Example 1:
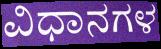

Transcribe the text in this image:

ವಿಧಾನಗಳ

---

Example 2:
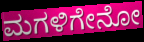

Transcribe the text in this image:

ಮಗಳಿಗೇನೋ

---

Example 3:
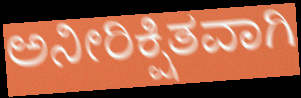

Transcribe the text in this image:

ಅನೀರಿಕ್ಷಿತವಾಗಿ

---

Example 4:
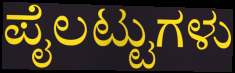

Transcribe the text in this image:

ಪೈಲಟ್ಟುಗಳು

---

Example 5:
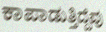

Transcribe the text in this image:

ಕಾಪಾಡುತ್ತಿದ್ದೆವು